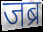
जब्र